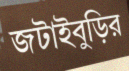
জটাইবুড়ির